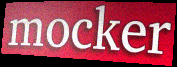
mocker